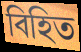
বিহিত